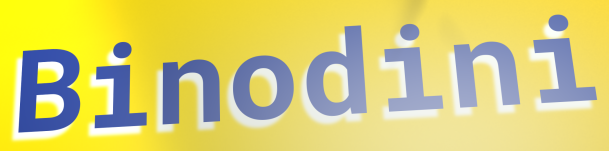
Binodini